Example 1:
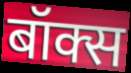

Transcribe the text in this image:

बॉक्‍स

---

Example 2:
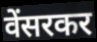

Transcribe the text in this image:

वेंसरकर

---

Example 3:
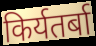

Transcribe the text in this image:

किर्यतर्बा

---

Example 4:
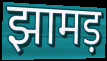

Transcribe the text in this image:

झामड़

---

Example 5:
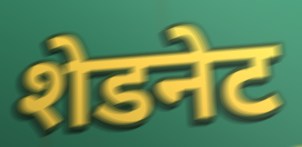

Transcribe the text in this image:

शेडनेट